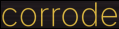
corrode